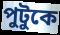
পুটুকে